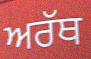
ਅਰੱਥ